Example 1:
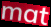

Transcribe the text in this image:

mat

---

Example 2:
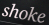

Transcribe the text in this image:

shoke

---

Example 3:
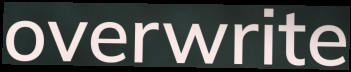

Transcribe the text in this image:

overwrite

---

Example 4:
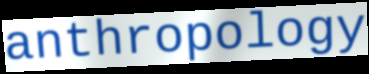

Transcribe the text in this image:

anthropology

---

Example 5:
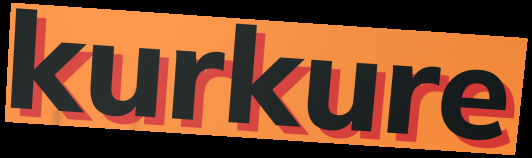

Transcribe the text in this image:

kurkure